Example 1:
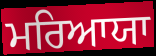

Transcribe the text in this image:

ਮਰਿਆਯਾ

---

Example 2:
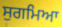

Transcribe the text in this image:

ਸੁਗਮਿਆ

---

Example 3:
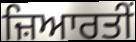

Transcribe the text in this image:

ਜ਼ਿਆਰਤੀਂ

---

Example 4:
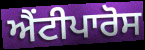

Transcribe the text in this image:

ਐਂਟੀਪਾਰੋਸ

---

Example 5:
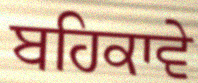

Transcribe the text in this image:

ਬਹਿਕਾਵੇ